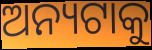
ଅନ୍ୟଟାକୁ